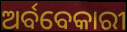
ଅର୍ବବେକାରୀ